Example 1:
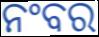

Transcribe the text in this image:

ନଂବର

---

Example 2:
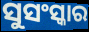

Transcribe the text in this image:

ସୁସଂସ୍କାର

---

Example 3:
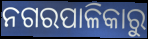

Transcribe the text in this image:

ନଗରପାଳିକାରୁ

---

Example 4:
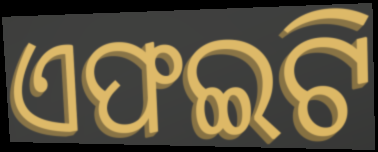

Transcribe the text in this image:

ଏଫଇଟି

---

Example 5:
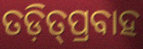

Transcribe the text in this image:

ତଡ଼ିତ୍‍ପ୍ରବାହ